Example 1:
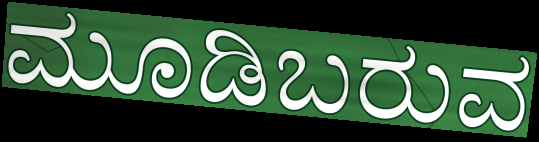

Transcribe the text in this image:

ಮೂಡಿಬರುವ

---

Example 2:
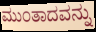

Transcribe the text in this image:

ಮುಂತಾದವನ್ನು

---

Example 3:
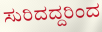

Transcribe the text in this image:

ಸುರಿದದ್ದರಿಂದ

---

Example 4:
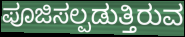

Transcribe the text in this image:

ಪೂಜಿಸಲ್ಪಡುತ್ತಿರುವ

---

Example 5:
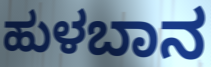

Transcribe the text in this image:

ಹುಳಬಾನ